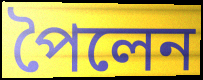
পৈলেন